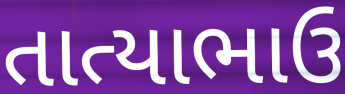
તાત્યાભાઉ